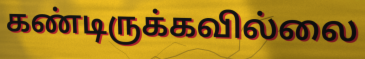
கண்டிருக்கவில்லை